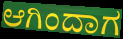
ಆಗಿಂದಾಗ